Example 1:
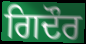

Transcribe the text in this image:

ਗਿਦੌਰ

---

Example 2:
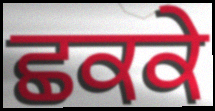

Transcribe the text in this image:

ਛਕਕੇ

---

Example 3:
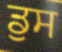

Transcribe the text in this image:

ਡੁਸ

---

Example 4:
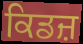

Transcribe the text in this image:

ਕਿਡਜ਼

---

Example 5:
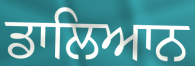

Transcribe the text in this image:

ਡਾਲਿਆਨ